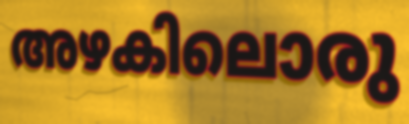
അഴകിലൊരു